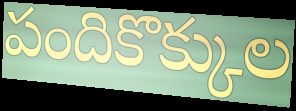
పందికొక్కుల